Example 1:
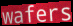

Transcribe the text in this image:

wafers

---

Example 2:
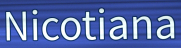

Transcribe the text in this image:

Nicotiana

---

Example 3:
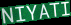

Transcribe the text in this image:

NIYATI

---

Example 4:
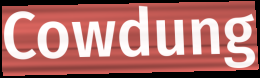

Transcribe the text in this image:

Cowdung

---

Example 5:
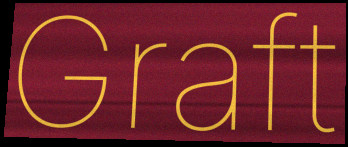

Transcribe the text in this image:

Graft